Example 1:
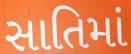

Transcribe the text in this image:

સાતિમાં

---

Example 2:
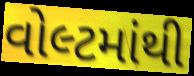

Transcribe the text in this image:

વોલ્ટમાંથી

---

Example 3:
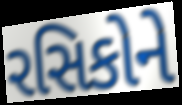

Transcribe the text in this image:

રસિકોને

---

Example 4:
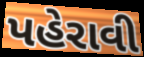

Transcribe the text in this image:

પહેરાવી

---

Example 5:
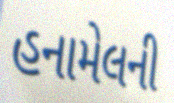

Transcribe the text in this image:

હનામેલની